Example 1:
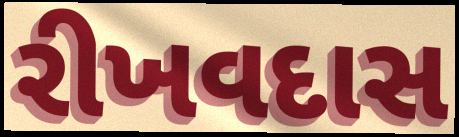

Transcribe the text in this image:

રીખવદાસ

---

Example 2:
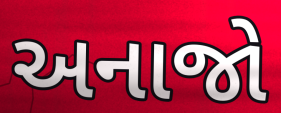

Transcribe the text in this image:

અનાજો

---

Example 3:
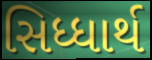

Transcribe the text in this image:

સિધ્ધાર્થ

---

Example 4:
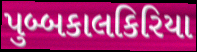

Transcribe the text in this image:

પુબ્બકાલકિરિયા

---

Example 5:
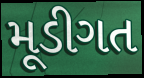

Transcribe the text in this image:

મૂડીગત